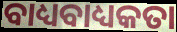
ବାଧ୍ୟବାଧ୍ୟକତା